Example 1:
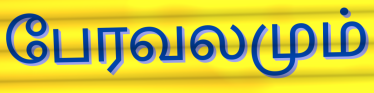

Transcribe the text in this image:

பேரவலமும்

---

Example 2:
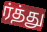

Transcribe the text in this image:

ர்த்து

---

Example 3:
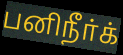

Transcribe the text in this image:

பனிநீர்க்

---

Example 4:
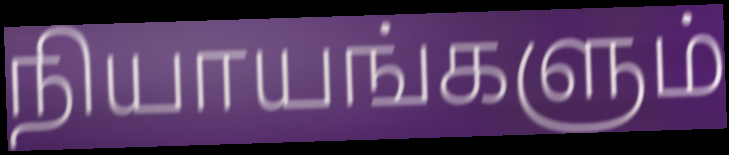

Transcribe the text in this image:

நியாயங்களும்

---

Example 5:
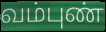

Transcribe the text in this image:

வம்புண்